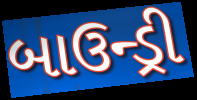
બાઉન્ડ્રી